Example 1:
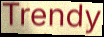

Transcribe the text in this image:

Trendy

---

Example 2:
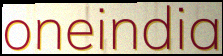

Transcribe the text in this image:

oneindia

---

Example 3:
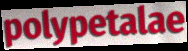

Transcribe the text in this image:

polypetalae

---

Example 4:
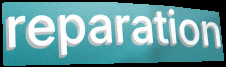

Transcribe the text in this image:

reparation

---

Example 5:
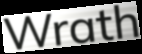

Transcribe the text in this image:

Wrath